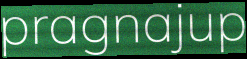
pragnajup